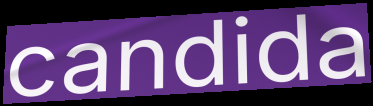
candida